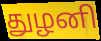
துழனி